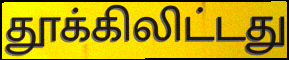
தூக்கிலிட்டது